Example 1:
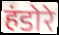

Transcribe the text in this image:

हंडोरे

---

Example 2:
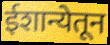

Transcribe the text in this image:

ईशान्येतून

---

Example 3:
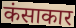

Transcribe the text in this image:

कंसाकार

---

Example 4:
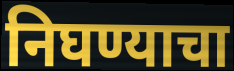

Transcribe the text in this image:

निघण्याचा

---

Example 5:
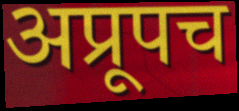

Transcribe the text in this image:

अप्रूपच